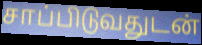
சாப்பிடுவதுடன்